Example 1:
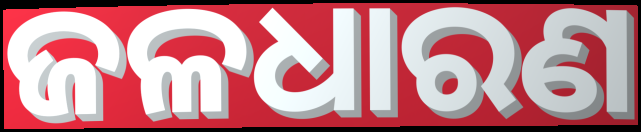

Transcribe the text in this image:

ଜଳଧାରଣ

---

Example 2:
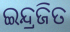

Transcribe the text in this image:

ଇନ୍ଦ୍ରଜିତ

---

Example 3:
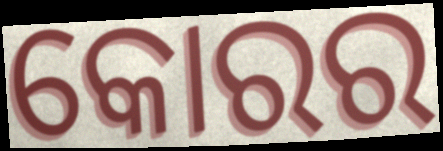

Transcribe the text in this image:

କୋରର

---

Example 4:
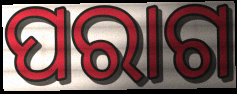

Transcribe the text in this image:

ପରାଗ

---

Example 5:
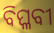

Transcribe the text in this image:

ବିପ୍ଳବୀ